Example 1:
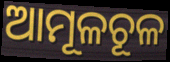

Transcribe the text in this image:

ଆମୂଳଚୂଳ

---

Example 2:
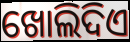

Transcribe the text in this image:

ଖୋଲିଦିଏ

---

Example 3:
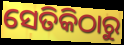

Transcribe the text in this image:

ସେତିକିଠାରୁ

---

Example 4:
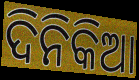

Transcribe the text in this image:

ଦିନିକିଆ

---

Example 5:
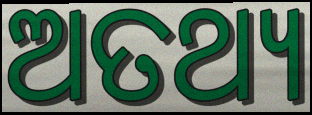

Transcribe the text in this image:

ଅତଥ୍ୟ